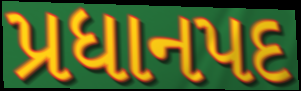
પ્રધાનપદ